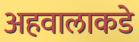
अहवालाकडे